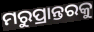
ମରୁପ୍ରାନ୍ତରକୁ